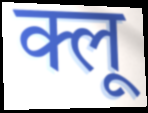
क्लू